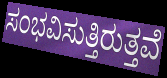
ಸಂಭವಿಸುತ್ತಿರುತ್ತವೆ